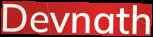
Devnath